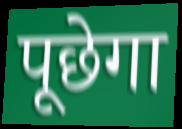
पूछेगा